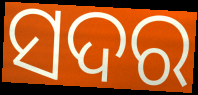
ସଦର